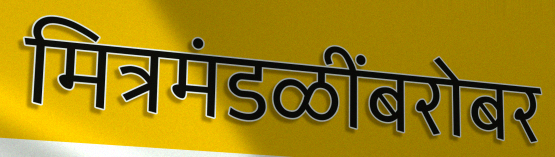
मित्रमंडळींबरोबर